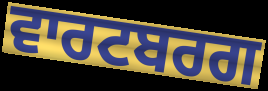
ਵਾਰਟਬਰਗ